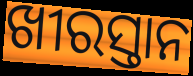
ଖୀରସ୍ତାନ